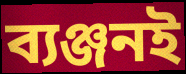
ব্যঞ্জনই